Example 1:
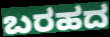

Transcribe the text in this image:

ಬರಹದ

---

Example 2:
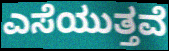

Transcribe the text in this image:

ಎಸೆಯುತ್ತವೆ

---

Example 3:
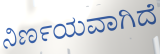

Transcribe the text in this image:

ನಿರ್ಣಯವಾಗಿದೆ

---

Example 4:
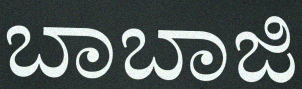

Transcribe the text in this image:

ಬಾಬಾಜಿ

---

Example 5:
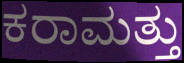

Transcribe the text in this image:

ಕರಾಮತ್ತು